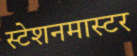
स्टेशनमास्टर